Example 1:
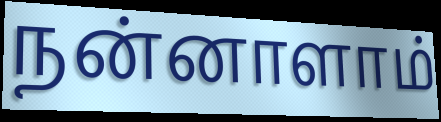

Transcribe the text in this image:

நன்னாளாம்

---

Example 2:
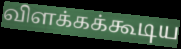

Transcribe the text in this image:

விளக்கக்கூடிய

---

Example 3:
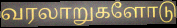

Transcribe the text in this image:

வரலாறுகளோடு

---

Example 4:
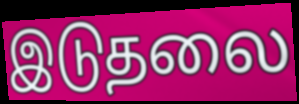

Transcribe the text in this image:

இடுதலை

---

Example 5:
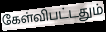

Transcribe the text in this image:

கேள்விபட்டதும்